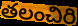
తలంచిరి